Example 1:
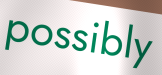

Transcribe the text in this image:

possibly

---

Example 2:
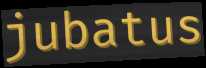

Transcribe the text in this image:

jubatus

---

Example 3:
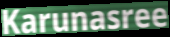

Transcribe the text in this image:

Karunasree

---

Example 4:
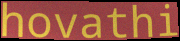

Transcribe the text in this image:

hovathi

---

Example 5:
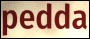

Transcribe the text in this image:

pedda